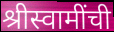
श्रीस्वामींची